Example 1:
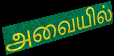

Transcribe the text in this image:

அவையில்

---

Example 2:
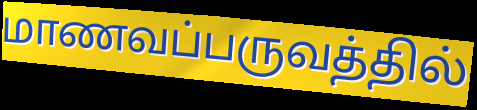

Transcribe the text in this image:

மாணவப்பருவத்தில்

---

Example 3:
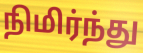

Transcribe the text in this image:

நிமிர்ந்து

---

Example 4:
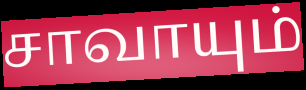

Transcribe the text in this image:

சாவாயும்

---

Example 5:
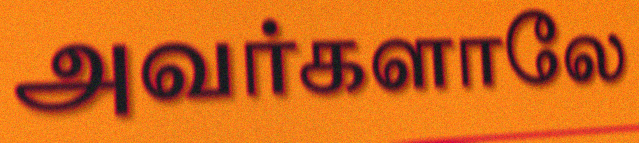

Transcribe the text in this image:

அவர்களாலே